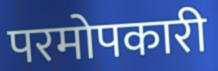
परमोपकारी